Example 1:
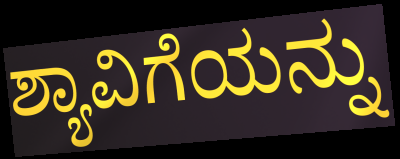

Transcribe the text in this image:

ಶ್ಯಾವಿಗೆಯನ್ನು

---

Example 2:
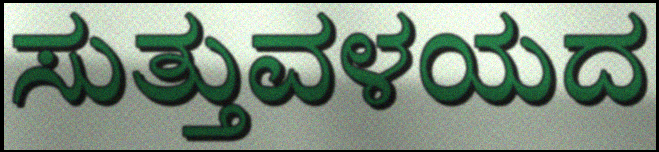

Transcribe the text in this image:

ಸುತ್ತುವಳಯದ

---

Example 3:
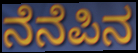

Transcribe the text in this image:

ನೆನೆಪಿನ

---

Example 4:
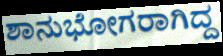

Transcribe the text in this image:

ಶಾನುಭೋಗರಾಗಿದ್ದ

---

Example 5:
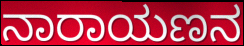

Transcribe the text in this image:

ನಾರಾಯಣನ